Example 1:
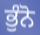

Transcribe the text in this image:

ਭੁੰਨੋ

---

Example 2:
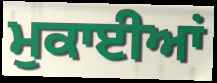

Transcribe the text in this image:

ਮੁਕਾਈਆਂ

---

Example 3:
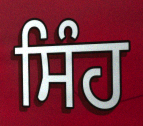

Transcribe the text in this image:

ਸਿੰਹ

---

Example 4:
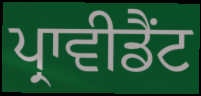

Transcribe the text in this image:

ਪ੍ਰਾਵੀਡੈਂਟ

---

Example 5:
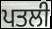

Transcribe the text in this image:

ਪਤਲੀ